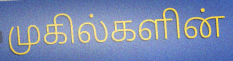
முகில்களின்